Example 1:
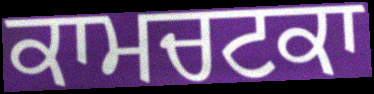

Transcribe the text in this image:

ਕਾਮਚਟਕਾ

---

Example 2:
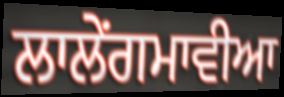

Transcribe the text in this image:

ਲਾਲੇਂਗਮਾਵੀਆ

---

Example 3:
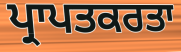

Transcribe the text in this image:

ਪ੍ਰਾਪਤਕਰਤਾ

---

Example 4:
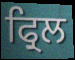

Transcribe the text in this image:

ਫ੍ਰਿਲ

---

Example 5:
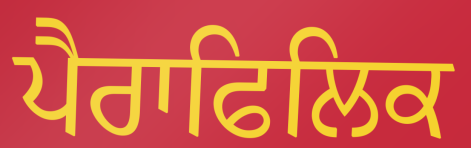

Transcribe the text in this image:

ਪੈਰਾਫਿਲਿਕ